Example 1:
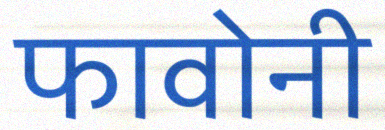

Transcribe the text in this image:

फावोनी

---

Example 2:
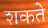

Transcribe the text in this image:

शकते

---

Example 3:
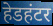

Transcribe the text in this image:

हेडहंटर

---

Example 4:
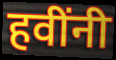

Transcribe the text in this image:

हवींनी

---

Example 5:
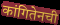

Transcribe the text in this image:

कांगितेनची